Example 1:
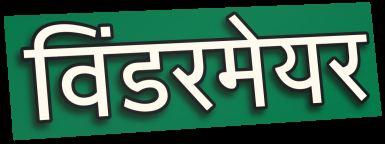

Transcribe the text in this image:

विंडरमेयर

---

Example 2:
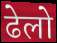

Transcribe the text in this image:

ढेलो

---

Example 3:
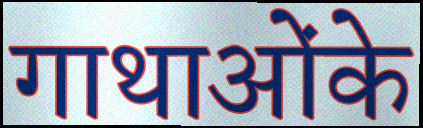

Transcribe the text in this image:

गाथाओंके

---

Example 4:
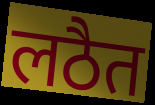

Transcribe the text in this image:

लठैत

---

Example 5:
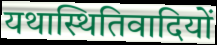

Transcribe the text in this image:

यथास्थितिवादियों